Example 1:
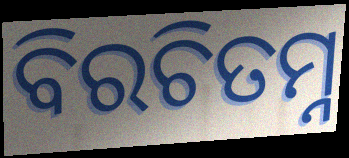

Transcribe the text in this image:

ବିରଚିତମ୍ନ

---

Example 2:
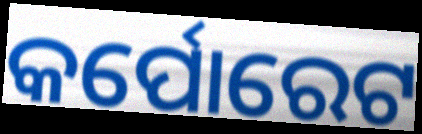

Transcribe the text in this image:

କର୍ପୋରେଟ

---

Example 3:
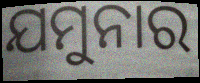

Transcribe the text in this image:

ଯମୁନାର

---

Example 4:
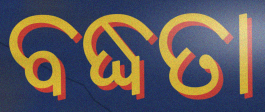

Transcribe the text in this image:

ବଦ୍ଧତା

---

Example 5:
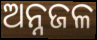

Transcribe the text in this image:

ଅନ୍ନଜଳ